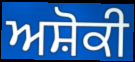
ਅਸ਼ੋਕੀ